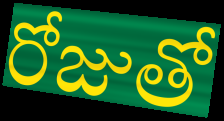
రోజుతో